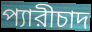
প্যারীচাদ